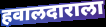
हवालदाराला